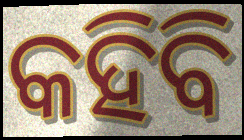
କହିବି